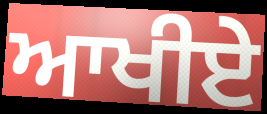
ਆਖੀਏ